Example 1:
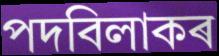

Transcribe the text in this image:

পদবিলাকৰ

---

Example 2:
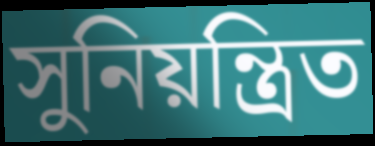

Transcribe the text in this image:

সুনিয়ন্ত্ৰিত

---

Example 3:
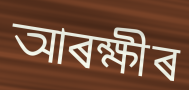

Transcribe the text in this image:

আৰক্ষীৰ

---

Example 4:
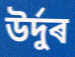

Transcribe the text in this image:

উৰ্দুৰ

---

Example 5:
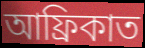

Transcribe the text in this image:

আফ্ৰিকাত